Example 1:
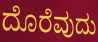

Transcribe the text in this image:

ದೊರೆವುದು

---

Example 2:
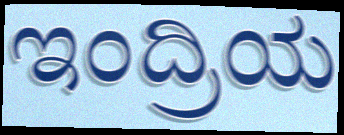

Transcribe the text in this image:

ಇಂದ್ರಿಯ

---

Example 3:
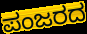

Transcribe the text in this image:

ಪಂಜರದ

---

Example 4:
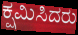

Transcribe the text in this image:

ಕ್ಷಮಿಸಿದರು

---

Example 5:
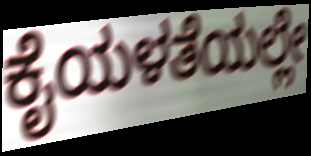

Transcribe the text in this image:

ಕೈಯಳತೆಯಲ್ಲೇ